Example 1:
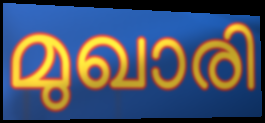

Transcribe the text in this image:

മുഖാരി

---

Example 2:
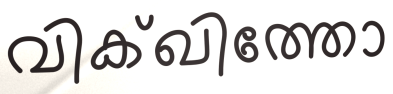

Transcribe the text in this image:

വിക്ഖിത്തോ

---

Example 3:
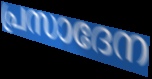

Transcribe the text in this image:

പ്രസാദേന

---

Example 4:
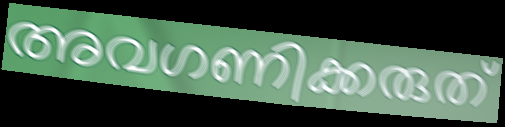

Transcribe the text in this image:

അവഗണിക്കരുത്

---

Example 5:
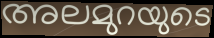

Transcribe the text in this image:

അലമുറയുടെ